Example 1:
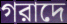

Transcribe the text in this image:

গরাদে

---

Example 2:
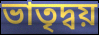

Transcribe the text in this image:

ভাতৃদ্বয়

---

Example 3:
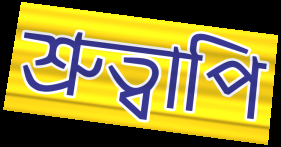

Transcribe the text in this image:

শ্রুত্বাপি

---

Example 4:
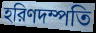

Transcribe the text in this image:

হরিণদম্পতি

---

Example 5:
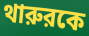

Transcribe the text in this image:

থারুরকে